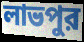
লাভপুর